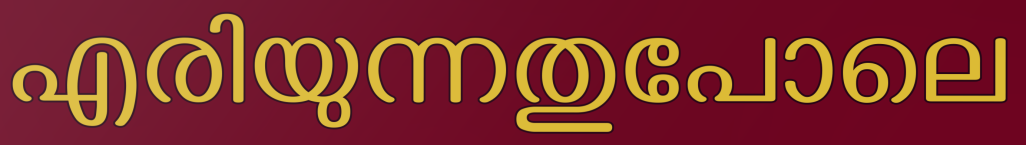
എരിയുന്നതുപോലെ